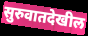
सुरुवातदेखील